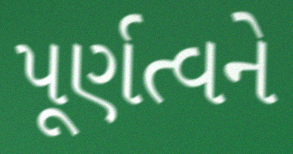
પૂર્ણત્વને